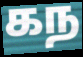
கந